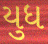
યુધ